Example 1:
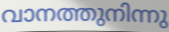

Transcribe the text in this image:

വാനത്തുനിന്നു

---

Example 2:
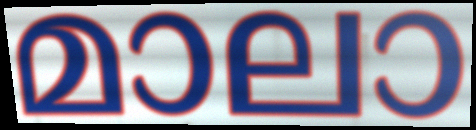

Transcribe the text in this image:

മാലാ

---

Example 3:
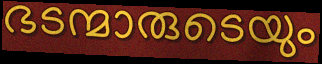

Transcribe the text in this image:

ഭടന്മാരുടെയും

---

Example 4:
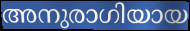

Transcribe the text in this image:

അനുരാഗിയായ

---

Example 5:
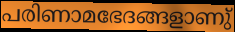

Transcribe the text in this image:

പരിണാമഭേദങ്ങളാണു്